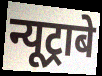
न्यूट्राबे